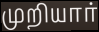
முறியார்